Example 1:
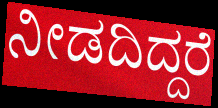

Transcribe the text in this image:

ನೀಡದಿದ್ದರೆ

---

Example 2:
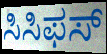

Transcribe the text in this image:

ಸಿಸಿಫಸ್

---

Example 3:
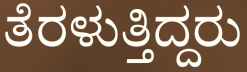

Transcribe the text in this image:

ತೆರಳುತ್ತಿದ್ದರು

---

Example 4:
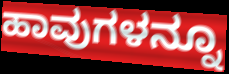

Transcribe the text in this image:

ಹಾವುಗಳನ್ನೂ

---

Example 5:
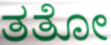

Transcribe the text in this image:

ತತೋ